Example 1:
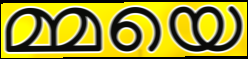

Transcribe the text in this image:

മ്മയെ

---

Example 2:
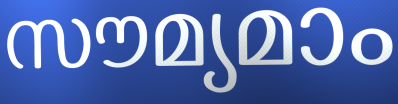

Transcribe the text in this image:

സൗമ്യമാം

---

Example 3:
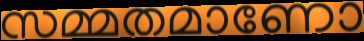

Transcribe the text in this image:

സമ്മതമാണോ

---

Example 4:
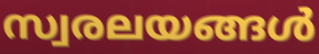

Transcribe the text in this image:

സ്വരലയങ്ങൾ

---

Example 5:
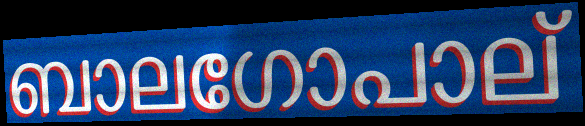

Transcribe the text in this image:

ബാലഗോപാല്